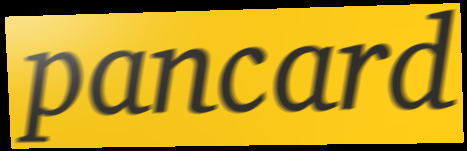
pancard